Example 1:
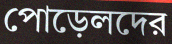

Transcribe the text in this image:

পোড়েলদের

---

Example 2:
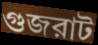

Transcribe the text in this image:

গুজরাট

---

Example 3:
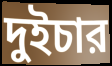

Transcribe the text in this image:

দুইচার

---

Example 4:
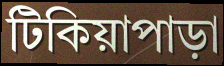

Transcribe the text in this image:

টিকিয়াপাড়া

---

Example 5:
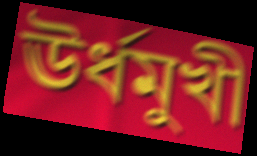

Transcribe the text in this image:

ঊর্ধমুখী